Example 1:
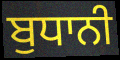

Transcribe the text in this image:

ਬੁਧਾਨੀ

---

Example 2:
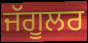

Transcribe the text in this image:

ਜੱਗੂਲਰ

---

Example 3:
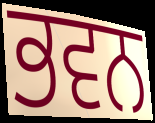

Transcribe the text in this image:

ਭਵਨ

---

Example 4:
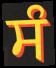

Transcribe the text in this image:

ਸੰ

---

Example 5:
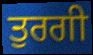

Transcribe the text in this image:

ਤੁਰਗੀ